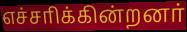
எச்சரிக்கின்றனர்